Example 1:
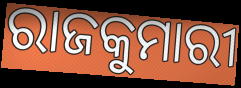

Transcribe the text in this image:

ରାଜକୁମାରୀ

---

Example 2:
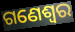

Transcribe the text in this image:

ଗଣେଶ୍ୱର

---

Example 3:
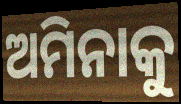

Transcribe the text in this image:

ଅମିନାକୁ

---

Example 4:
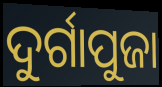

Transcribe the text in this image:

ଦୁର୍ଗାପୁଜା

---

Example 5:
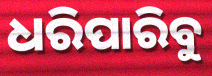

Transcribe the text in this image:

ଧରିପାରିବୁ